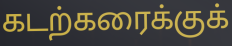
கடற்கரைக்குக்